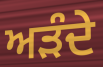
ਅੜੰਦੇ